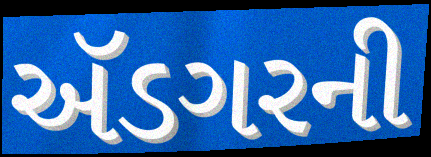
ઍડગરની